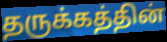
தருக்கத்தின்